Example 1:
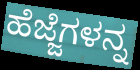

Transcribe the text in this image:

ಹೆಜ್ಜೆಗಳನ್ನ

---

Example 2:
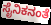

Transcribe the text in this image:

ಸೈನಿಕನಂತೆ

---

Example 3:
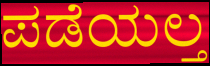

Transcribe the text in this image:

ಪಡೆಯಲ್ತ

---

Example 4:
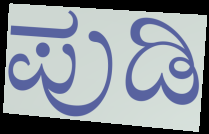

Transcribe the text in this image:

ಪುಡಿ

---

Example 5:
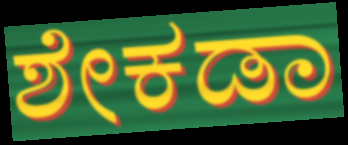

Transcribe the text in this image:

ಶೇಕಡಾ